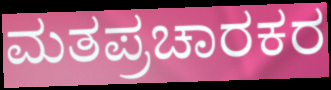
ಮತಪ್ರಚಾರಕರ